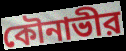
কৌনাভীর